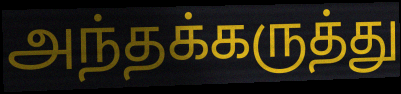
அந்தக்கருத்து